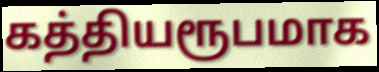
கத்தியரூபமாக